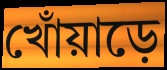
খোঁয়াড়ে